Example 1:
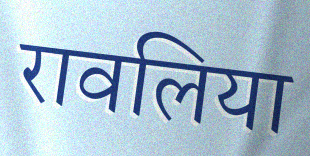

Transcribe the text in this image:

रावलिया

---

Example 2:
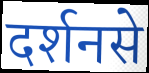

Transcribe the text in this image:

दर्शनसे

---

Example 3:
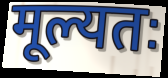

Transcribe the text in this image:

मूल्यतः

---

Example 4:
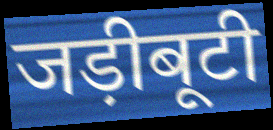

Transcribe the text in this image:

जड़ीबूटी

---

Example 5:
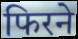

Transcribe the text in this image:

फिरने